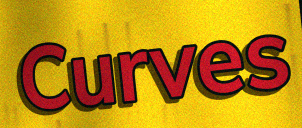
Curves